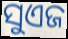
ସୁଏଜ